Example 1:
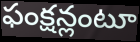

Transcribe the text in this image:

ఫంక్షన్లంటూ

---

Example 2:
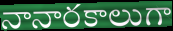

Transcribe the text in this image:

నానారకాలుగా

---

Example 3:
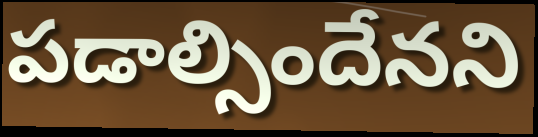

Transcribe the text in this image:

పడాల్సిందేనని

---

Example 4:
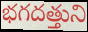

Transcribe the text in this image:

భగదత్తుని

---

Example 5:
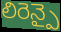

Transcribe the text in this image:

లిరెన్పై